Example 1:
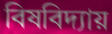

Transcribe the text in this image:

বিষবিদ্যায়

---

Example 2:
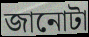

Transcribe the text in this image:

জানোটা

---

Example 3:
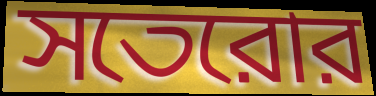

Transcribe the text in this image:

সতেরোর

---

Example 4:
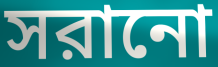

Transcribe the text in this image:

সরানো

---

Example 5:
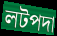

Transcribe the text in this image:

লটপদা